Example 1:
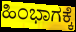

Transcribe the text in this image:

ಹಿಂಭಾಗಕ್ಕೆ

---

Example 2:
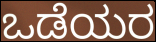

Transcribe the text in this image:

ಒಡೆಯರ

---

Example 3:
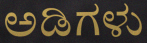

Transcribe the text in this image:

ಅಡಿಗಳು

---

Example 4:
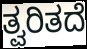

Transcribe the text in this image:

ತ್ವರಿತದೆ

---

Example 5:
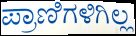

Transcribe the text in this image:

ಪ್ರಾಣಿಗಳಿಗಿಲ್ಲ